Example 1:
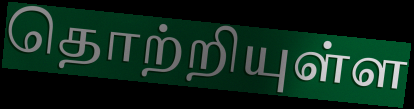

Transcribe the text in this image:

தொற்றியுள்ள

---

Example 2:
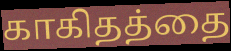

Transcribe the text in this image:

காகிதத்தை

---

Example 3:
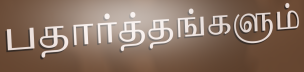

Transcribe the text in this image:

பதார்த்தங்களும்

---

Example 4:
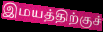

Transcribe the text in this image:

இமயத்திற்குச்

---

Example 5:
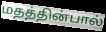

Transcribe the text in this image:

மதத்தின்பால்